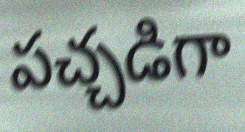
పచ్చడిగా